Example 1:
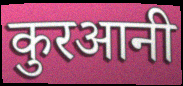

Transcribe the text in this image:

कुरआनी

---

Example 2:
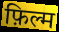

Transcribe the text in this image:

फ़िल्म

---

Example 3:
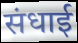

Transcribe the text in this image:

संधाई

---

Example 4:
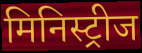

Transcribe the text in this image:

मिनिस्ट्रीज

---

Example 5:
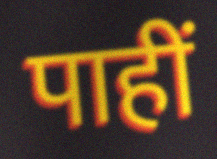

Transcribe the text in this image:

पाहीं